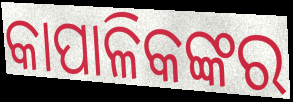
କାପାଳିକଙ୍କର